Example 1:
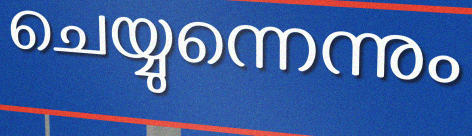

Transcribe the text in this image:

ചെയ്യുന്നെന്നും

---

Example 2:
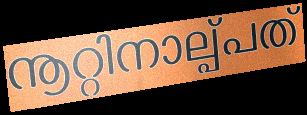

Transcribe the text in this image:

നൂറ്റിനാല്പ്പത്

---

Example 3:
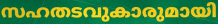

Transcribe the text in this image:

സഹതടവുകാരുമായി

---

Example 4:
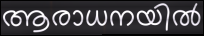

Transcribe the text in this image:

ആരാധനയിൽ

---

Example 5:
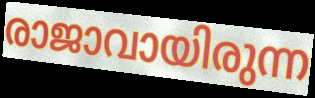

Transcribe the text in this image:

രാജാവായിരുന്ന